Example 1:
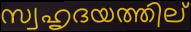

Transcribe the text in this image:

സ്വഹൃദയത്തില്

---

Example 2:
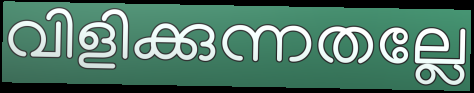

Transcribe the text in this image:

വിളിക്കുന്നതല്ലേ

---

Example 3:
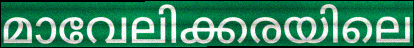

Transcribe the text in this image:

മാവേലിക്കരയിലെ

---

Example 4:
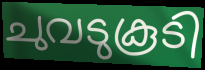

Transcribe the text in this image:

ചുവടുകൂടി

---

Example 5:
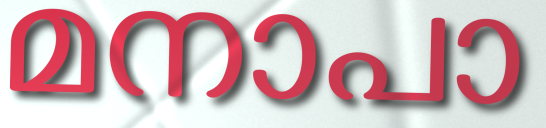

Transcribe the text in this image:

മനാപാ